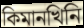
কিমানখিনি